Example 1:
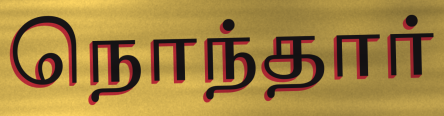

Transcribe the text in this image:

நொந்தார்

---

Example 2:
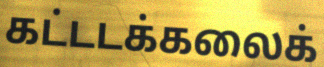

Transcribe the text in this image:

கட்டடக்கலைக்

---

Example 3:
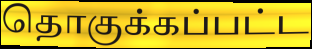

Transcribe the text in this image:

தொகுக்கப்பட்ட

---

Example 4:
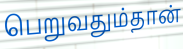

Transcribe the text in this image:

பெறுவதும்தான்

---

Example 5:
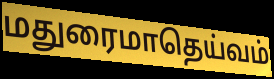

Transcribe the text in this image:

மதுரைமாதெய்வம்